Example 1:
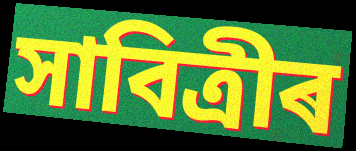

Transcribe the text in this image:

সাবিত্ৰীৰ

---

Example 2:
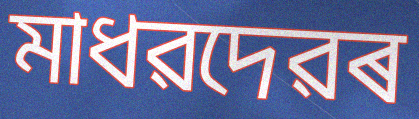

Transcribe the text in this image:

মাধৱদেৱৰ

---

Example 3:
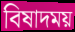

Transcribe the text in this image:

বিষাদময়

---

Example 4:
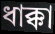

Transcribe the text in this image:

ধাক্কা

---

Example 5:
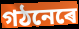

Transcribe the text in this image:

গঠনেৰে